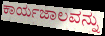
ಕಾರ್ಯಜಾಲವನ್ನು